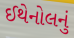
ઈથેનોલનું